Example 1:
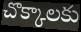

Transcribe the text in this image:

చొక్కాలకు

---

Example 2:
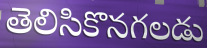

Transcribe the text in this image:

తెలిసికొనగలడు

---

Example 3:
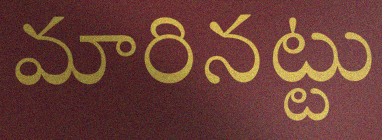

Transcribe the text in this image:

మారినట్టు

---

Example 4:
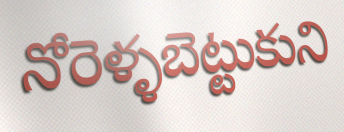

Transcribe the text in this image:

నోరెళ్ళబెట్టుకుని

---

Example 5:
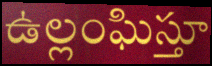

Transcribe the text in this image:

ఉల్లంఘిస్తూ